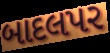
બાદલપર